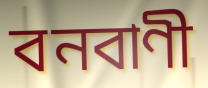
বনবাণী